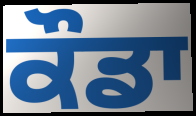
ਕੌਡਾ